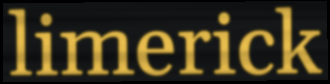
limerick